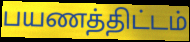
பயணத்திட்டம்